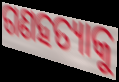
ଗଣହତ୍ୟାକୁ